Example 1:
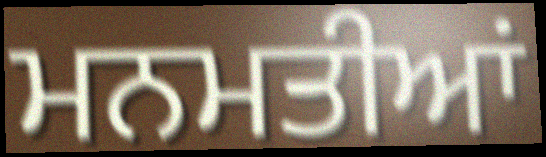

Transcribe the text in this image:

ਮਨਮਤੀਆਂ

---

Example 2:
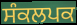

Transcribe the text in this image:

ਸੰਕਲਪਕ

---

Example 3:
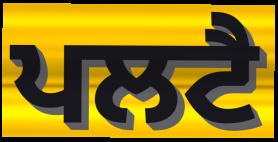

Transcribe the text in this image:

ਪਲਟੈ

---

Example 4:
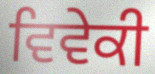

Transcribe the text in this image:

ਵਿਵੇਕੀ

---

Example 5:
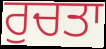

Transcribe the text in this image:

ਰੁਚਤਾ